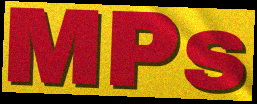
MPs